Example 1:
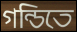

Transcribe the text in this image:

গন্ডিতে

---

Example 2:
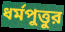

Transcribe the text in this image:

ধর্মপুত্তুর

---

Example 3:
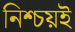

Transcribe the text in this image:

নিশ্চয়ই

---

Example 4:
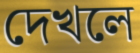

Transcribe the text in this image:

দেখলে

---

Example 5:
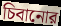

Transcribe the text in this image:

চিবানোর